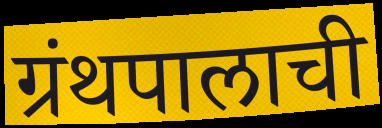
ग्रंथपालाची